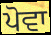
ਪੋਵਾ